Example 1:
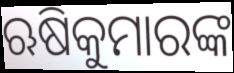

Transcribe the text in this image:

ଋଷିକୁମାରଙ୍କ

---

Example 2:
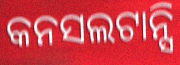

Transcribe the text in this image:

କନସଲଟାନ୍ସି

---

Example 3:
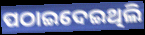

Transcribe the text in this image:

ପଠାଇଦେଇଥିଲି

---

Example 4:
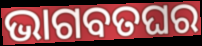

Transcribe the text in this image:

ଭାଗବତଘର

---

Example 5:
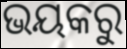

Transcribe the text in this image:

ଭୟକରୁ